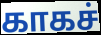
காகச்